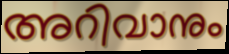
അറിവാനും